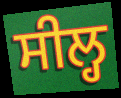
ਸੀਲ੍ਹ